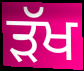
ੜੱਖ